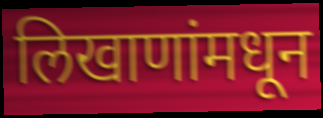
लिखाणांमधून